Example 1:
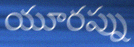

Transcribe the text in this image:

యూరప్ను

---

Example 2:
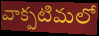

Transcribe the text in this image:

వాక్పటిమలో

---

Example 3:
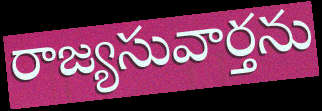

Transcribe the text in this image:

రాజ్యసువార్తను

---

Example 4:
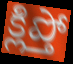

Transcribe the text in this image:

క్లిప్తో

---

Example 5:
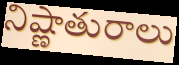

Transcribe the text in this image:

నిష్ణాతురాలు